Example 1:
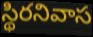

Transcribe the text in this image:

స్థిరనివాస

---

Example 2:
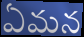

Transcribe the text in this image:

ఏమన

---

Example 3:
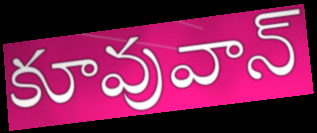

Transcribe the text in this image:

కూవువాన్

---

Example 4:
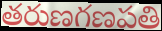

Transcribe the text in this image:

తరుణగణపతి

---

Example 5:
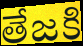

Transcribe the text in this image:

తేజకి